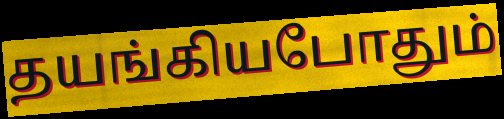
தயங்கியபோதும்